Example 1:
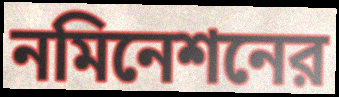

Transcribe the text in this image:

নমিনেশনের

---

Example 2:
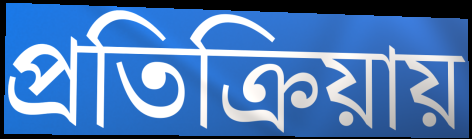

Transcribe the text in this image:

প্রতিক্রিয়ায়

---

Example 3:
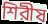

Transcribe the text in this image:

শিরীষ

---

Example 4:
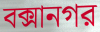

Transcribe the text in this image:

বক্সানগর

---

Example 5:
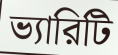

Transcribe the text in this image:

ভ্যারিটি